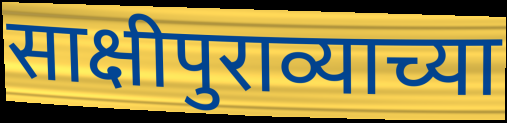
साक्षीपुराव्याच्या